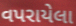
વપરાયેલા